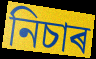
নিচাৰ